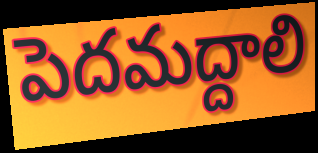
పెదమద్దాలి